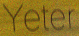
Yeter